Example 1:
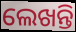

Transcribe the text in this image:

ଲେଖନ୍ତି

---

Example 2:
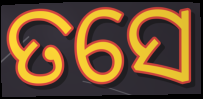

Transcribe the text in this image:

ତସେ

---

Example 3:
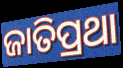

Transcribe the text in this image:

ଜାତିପ୍ରଥା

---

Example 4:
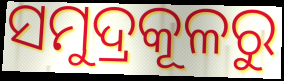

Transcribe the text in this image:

ସମୁଦ୍ରକୂଳରୁ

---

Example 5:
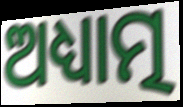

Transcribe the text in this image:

ଅଧ୍ୟାତ୍ମ